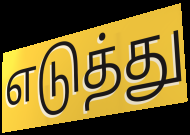
எடுத்து